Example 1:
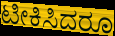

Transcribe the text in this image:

ಟೀಕಿಸಿದರೂ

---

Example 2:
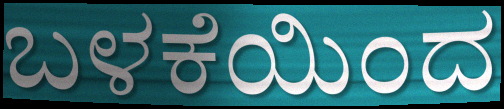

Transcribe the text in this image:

ಬಳಕೆಯಿಂದ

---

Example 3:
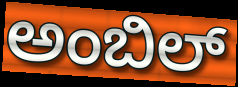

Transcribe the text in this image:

ಅಂಬಿಲ್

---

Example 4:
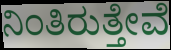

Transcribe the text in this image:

ನಿಂತಿರುತ್ತೇವೆ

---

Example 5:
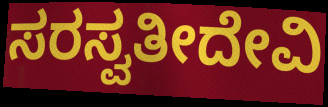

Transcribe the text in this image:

ಸರಸ್ವತೀದೇವಿ